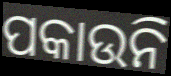
ପକାଉନି